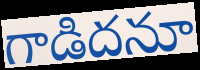
గాడిదనూ